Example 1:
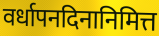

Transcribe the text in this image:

वर्धापनदिनानिमित्त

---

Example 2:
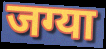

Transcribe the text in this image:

जग्या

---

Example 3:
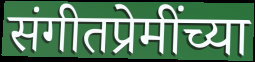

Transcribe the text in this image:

संगीतप्रेमींच्या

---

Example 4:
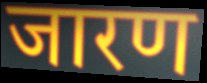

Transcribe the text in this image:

जारण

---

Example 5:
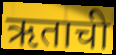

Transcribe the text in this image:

ऋताची